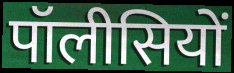
पॉलीसियों